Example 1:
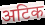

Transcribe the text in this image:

अटिक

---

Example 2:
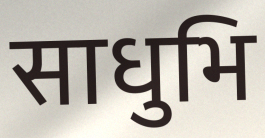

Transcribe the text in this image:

साधुभि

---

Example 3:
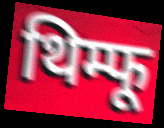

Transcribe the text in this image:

थिम्फू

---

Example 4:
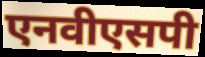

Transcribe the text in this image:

एनवीएसपी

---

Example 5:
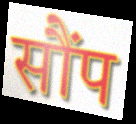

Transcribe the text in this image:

सौंप